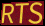
RTS